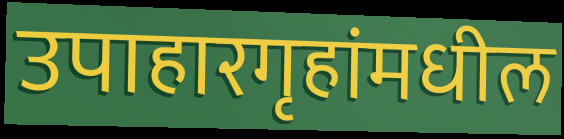
उपाहारगृहांमधील